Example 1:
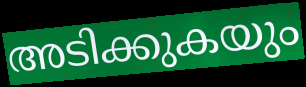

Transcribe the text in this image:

അടിക്കുകയും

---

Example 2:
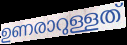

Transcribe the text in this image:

ഉണരാറുള്ളത്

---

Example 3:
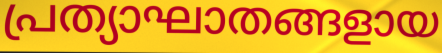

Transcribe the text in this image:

പ്രത്യാഘാതങ്ങളായ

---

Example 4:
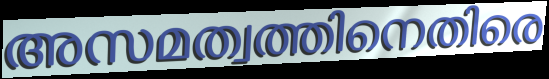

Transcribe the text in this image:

അസമത്വത്തിനെതിരെ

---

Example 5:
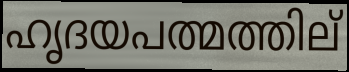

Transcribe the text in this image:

ഹൃദയപത്മത്തില്